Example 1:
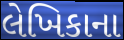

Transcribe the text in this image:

લેખિકાના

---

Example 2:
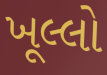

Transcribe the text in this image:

ખૂલ્લો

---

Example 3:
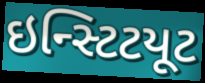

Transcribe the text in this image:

ઇન્સ્ટિટયૂટ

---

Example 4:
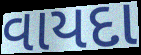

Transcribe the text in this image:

વાયદા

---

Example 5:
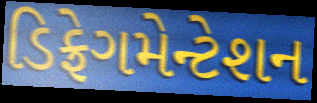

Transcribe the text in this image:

ડિફ્રેગમેન્ટેશન